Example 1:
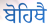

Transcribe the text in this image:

ਬੋਹਿਥੈ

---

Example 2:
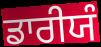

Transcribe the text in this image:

ਡਾਰੀਯੰ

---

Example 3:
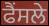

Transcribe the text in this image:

ਫੈਂਸਲੇ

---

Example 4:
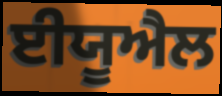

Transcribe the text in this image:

ਈਯੂਐਲ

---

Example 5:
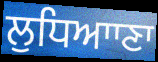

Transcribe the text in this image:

ਲੁਧਿਆਾਣਾ